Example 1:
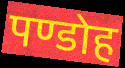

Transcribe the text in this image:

पण्डोह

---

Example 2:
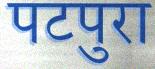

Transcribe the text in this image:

पटपुरा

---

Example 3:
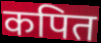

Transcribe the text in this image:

कपित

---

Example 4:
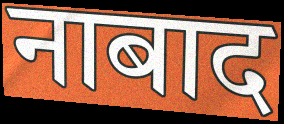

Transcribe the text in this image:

नाबाद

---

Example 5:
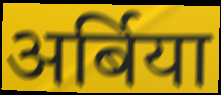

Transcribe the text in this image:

अर्बिया